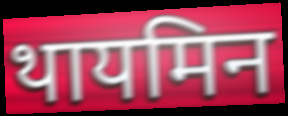
थायमिन